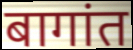
बागांत